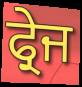
ਫ੍ਰੇਜ